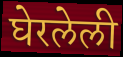
घेरलेली